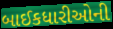
બાઈકધારીઓની